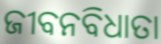
ଜୀବନବିଧାତା